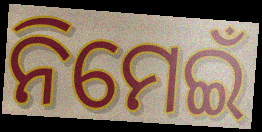
ନିମେଇଁ